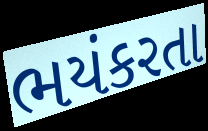
ભયંકરતા